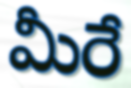
మీరే